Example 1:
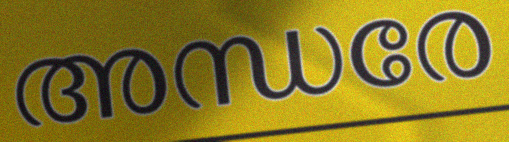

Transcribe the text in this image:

അന്ധരേ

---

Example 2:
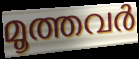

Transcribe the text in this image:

മൂത്തവർ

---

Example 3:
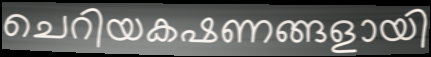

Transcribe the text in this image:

ചെറിയകഷണങ്ങളായി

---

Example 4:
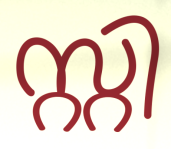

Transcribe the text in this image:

സ്റ്റി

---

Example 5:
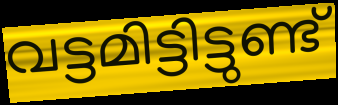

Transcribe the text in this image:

വട്ടമിട്ടിട്ടുണ്ട്